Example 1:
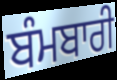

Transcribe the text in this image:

ਬੰਮਬਾਰੀ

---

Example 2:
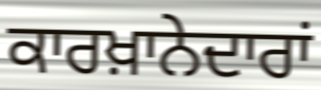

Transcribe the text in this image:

ਕਾਰਖ਼ਾਨੇਦਾਰਾਂ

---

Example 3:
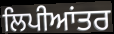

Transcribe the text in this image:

ਲਿਪੀਆਂਤਰ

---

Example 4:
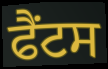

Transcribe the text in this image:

ਫੈਂਟਸ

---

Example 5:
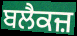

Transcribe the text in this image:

ਬਲੈਕਜ਼